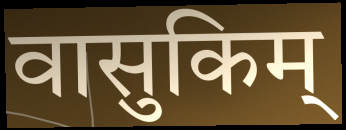
वासुकिम्